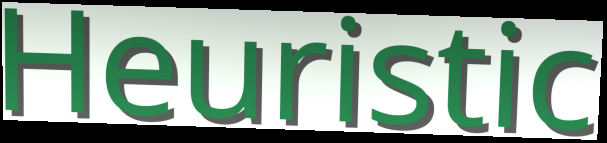
Heuristic